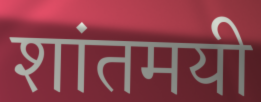
शांतमयी